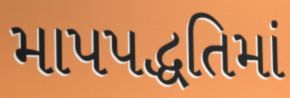
માપપદ્ધતિમાં